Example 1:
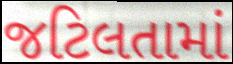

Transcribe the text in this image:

જટિલતામાં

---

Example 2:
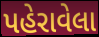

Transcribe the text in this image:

પહેરાવેલા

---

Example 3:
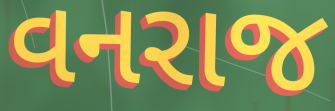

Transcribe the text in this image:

વનરાજ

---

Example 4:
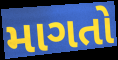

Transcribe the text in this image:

માગતો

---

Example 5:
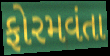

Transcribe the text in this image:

ફોરમવંતા